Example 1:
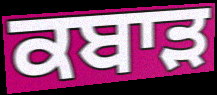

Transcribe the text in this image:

ਕਬਾਡ਼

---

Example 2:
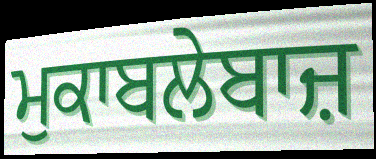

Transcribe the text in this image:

ਮੁਕਾਬਲੇਬਾਜ਼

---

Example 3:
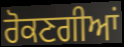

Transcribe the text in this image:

ਰੋਕਣਗੀਆਂ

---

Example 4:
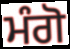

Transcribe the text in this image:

ਮੰਗੋ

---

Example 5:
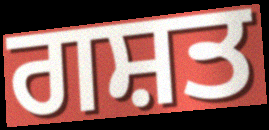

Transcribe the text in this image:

ਗਸ਼ਤ